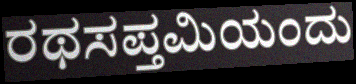
ರಥಸಪ್ತಮಿಯಂದು